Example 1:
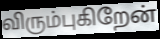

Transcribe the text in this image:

விரும்புகிறேன்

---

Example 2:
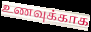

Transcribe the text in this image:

உணவுக்காக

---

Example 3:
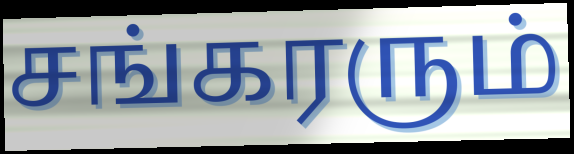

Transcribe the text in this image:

சங்கரரும்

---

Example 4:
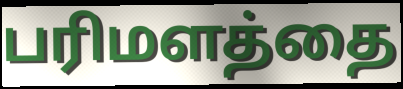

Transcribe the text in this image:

பரிமளத்தை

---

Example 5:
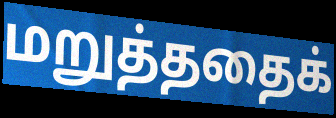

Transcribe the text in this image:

மறுத்ததைக்